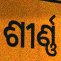
ଶୀର୍ଣ୍ଣ